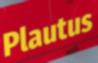
Plautus